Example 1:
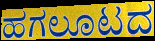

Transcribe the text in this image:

ಹಗಲೂಟದ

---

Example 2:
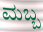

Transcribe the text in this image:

ಮಬ್ಬ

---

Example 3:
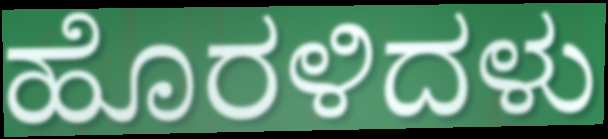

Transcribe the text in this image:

ಹೊರಳಿದಳು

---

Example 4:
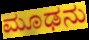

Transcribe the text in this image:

ಮೂಢನು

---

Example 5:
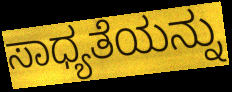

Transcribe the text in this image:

ಸಾಧ್ಯತೆಯನ್ನು